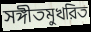
সঙ্গীতমুখরিত